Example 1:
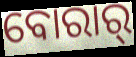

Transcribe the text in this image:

ବୋରାର୍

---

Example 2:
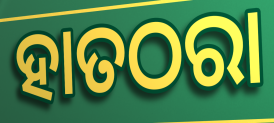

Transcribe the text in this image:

ହାତଠରା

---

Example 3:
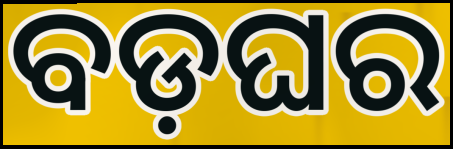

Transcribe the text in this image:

ବଡ଼ଘର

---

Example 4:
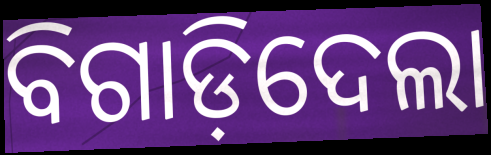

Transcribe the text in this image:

ବିଗାଡ଼ିଦେଲା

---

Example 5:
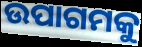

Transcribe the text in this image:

ଉପାଗମକୁ